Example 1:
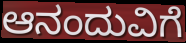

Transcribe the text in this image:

ಆನಂದುವಿಗೆ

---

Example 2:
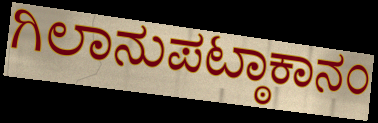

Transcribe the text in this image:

ಗಿಲಾನುಪಟ್ಠಾಕಾನಂ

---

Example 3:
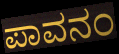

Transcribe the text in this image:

ಪಾವನಂ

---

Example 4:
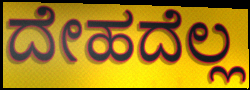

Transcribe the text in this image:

ದೇಹದೆಲ್ಲ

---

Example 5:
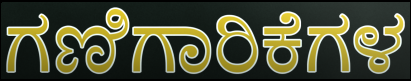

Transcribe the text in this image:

ಗಣಿಗಾರಿಕೆಗಳ